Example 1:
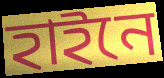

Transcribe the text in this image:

হাইনে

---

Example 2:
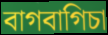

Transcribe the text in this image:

বাগবাগিচা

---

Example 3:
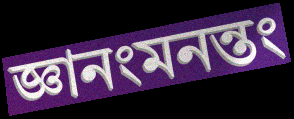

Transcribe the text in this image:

জ্ঞানংমনন্তং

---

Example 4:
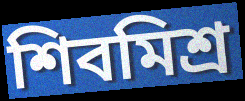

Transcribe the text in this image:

শিবমিশ্র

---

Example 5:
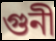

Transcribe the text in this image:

গুনী